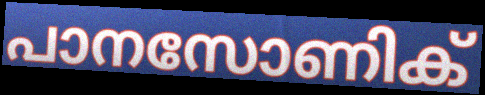
പാനസോണിക്